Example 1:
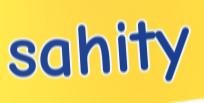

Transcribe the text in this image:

sahity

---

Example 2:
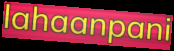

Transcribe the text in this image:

lahaanpani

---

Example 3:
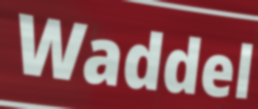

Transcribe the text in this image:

Waddel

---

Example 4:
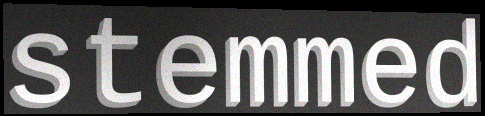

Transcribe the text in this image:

stemmed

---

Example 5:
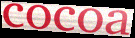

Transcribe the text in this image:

cocoa